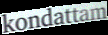
kondattam